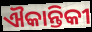
ଐକାନ୍ତିକୀ